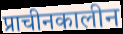
प्राचीनकालीन